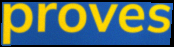
proves